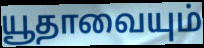
யூதாவையும்